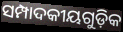
ସମ୍ପାଦକୀୟଗୁଡ଼ିକ